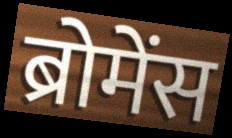
ब्रोमेंस